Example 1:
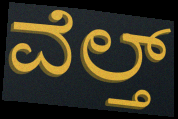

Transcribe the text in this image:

ವೆಲ್ತ್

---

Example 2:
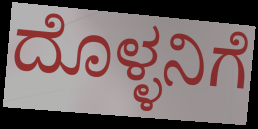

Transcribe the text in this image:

ದೊಳ್ಳನಿಗೆ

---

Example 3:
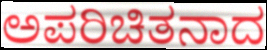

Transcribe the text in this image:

ಅಪರಿಚಿತನಾದ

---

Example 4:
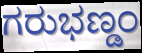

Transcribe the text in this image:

ಗರುಭಣ್ಡಂ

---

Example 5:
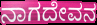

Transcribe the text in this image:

ನಾಗದೇವನ